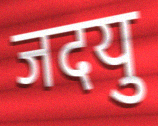
जदयु